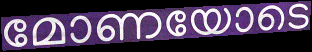
മോണയോടെ